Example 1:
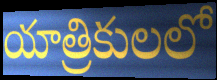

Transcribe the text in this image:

యాత్రికులలో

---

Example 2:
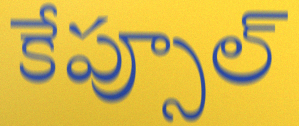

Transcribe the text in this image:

కేప్సూల్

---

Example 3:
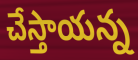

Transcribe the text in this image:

చేస్తాయన్న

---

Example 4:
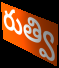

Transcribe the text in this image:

రుత్వి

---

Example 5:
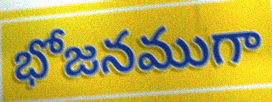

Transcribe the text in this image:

భోజనముగా